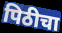
पिठीचा